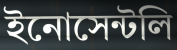
ইনোসেন্টলি